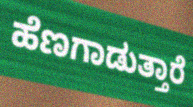
ಹೆಣಗಾಡುತ್ತಾರೆ